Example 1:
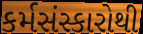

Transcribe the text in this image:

કર્મસંસ્કારોથી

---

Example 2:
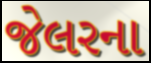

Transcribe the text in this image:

જેલરના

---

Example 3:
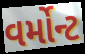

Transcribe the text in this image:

વર્મોન્ટ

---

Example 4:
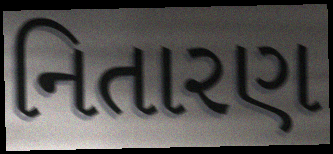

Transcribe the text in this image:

નિતારણ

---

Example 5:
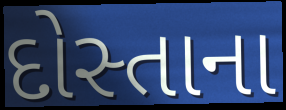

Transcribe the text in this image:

દોસ્તાના